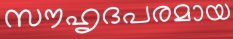
സൗഹൃദപരമായ